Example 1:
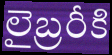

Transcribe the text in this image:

లైబ్రరీకి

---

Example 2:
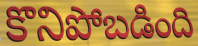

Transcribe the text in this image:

కొనిపోబడింది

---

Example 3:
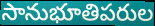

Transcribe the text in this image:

సానుభూతిపరుల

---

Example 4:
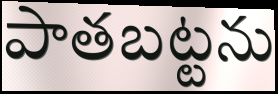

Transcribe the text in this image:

పాతబట్టను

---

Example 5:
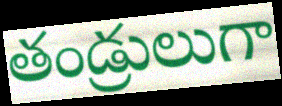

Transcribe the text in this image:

తండ్రులుగా